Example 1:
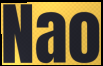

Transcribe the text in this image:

Nao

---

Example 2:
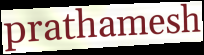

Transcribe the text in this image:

prathamesh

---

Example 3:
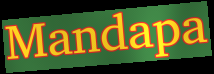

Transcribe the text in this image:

Mandapa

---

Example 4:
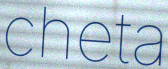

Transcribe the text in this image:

cheta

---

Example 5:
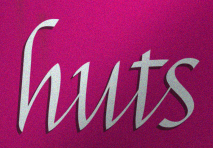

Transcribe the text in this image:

huts